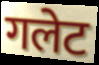
गलेट